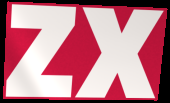
zx